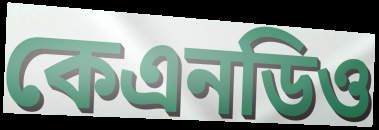
কেএনডিও